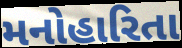
મનોહારિતા